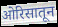
ओरिसातून